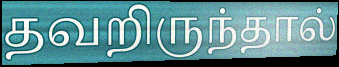
தவறிருந்தால்